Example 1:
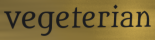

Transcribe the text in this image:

vegeterian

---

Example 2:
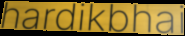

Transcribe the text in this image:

hardikbhai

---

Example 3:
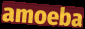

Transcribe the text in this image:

amoeba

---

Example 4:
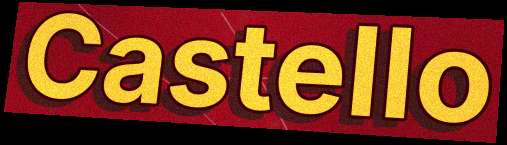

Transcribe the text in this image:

Castello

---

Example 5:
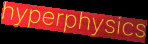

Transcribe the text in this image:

hyperphysics